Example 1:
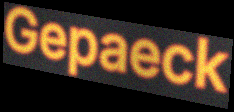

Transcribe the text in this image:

Gepaeck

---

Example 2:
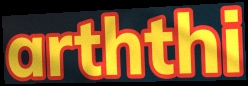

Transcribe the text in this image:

arththi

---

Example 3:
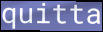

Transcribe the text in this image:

quitta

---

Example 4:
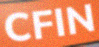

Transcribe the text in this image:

CFIN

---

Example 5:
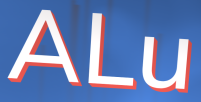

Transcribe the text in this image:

ALu